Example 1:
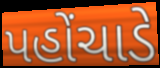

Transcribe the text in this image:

પહોંચાડે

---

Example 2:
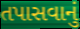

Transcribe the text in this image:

તપાસવાનું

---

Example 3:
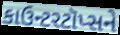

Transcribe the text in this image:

કાઉન્ટરટૉપ્સને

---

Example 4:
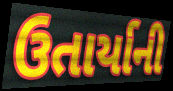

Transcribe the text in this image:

ઉતાર્યાની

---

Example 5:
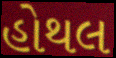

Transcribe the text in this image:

હોથલ